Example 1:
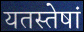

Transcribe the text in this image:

यतस्तेषां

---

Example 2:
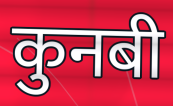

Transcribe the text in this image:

कुनबी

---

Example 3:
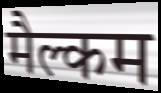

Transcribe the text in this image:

मैल्कम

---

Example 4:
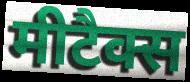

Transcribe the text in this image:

मीटैक्स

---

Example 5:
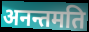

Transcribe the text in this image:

अनन्तमति